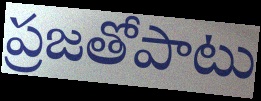
ప్రజతోపాటు